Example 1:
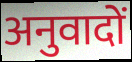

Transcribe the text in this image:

अनुवादों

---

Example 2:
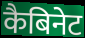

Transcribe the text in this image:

कैबिनेट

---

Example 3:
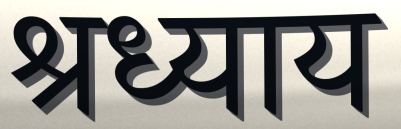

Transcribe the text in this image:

श्रध्याय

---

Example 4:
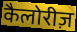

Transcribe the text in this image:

कैलोरीज़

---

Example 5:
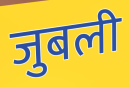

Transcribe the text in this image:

जुबली